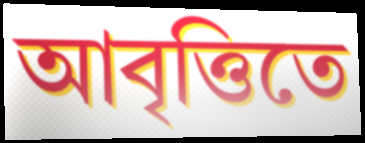
আবৃত্তিতে